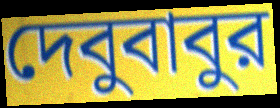
দেবুবাবুর